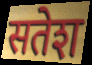
सतेश